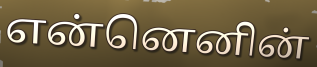
என்னெனின்